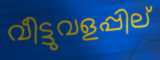
വീട്ടുവളപ്പില്